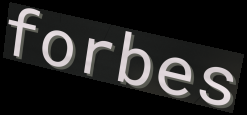
forbes